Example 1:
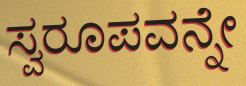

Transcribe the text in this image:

ಸ್ವರೂಪವನ್ನೇ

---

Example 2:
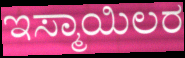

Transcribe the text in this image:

ಇಸ್ಮಾಯಿಲರ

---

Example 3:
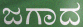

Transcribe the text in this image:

ಜಗಾದ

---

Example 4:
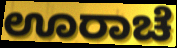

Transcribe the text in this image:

ಊರಾಚೆ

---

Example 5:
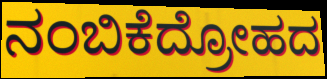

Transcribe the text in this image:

ನಂಬಿಕೆದ್ರೋಹದ